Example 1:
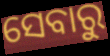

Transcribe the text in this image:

ସେବାରୁ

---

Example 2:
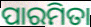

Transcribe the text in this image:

ପାରମିତା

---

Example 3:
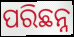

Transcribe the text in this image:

ପରିଛନ୍ନ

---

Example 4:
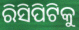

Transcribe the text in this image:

ରିସିପିଟିକୁ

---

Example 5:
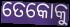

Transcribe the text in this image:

ତେକୋକୁ